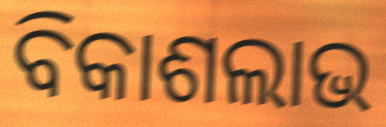
ବିକାଶଲାଭ